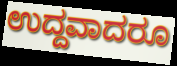
ಉದ್ದವಾದರೂ